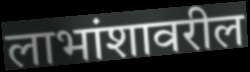
लाभांशावरील